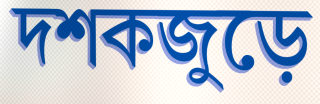
দশকজুড়ে